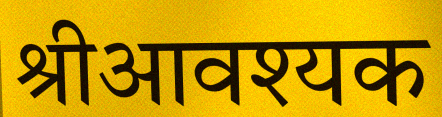
श्रीआवश्यक